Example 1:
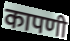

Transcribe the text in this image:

कापणी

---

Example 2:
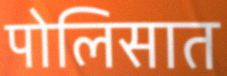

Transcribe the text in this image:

पोलिसात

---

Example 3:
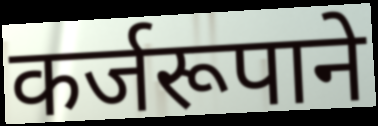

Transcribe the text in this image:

कर्जरूपाने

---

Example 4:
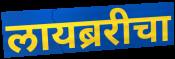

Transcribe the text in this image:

लायब्ररीचा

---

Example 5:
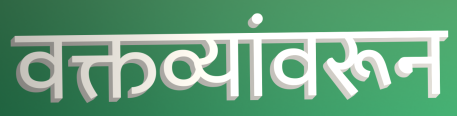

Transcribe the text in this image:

वक्तव्यांवरून